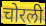
चोरली